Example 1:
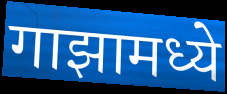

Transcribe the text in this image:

गाझामध्ये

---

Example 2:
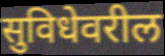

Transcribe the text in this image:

सुविधेवरील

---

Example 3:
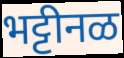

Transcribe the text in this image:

भट्टीनळ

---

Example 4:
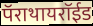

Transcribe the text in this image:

पॅराथायरॉईड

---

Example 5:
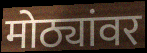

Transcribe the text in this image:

मोठ्यांवर